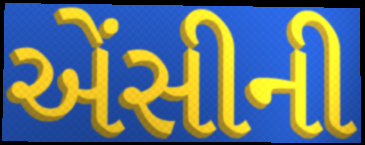
એંસીની